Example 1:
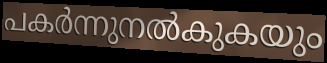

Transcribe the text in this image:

പകർന്നുനൽകുകയും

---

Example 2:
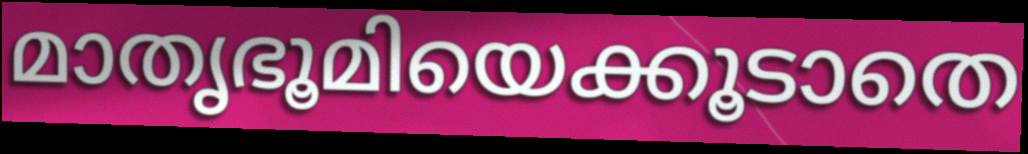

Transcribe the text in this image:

മാതൃഭൂമിയെക്കൂടാതെ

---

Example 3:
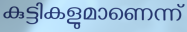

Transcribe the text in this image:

കുട്ടികളുമാണെന്ന്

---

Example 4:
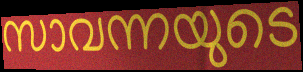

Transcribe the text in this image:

സാവന്നയുടെ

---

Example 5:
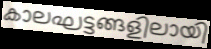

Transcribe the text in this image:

കാലഘട്ടങ്ങളിലായി